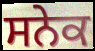
ਸਨੇਕ